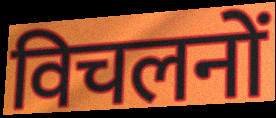
विचलनों